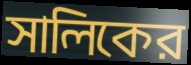
সালিকের